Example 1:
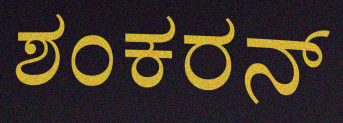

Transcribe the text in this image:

ಶಂಕರನ್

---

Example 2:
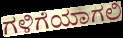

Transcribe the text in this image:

ಗಳಿಗೆಯಾಗಲಿ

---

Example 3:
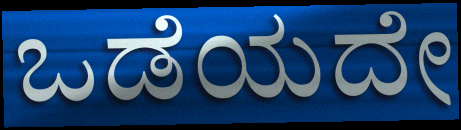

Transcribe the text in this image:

ಒಡೆಯದೇ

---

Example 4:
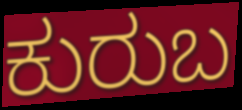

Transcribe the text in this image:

ಕುರುಬ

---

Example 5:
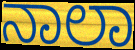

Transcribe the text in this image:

ನಾಲಾ